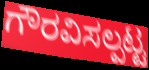
ಗೌರವಿಸಲ್ಪಟ್ಟ